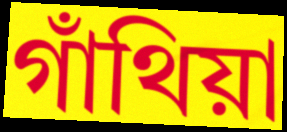
গাঁথিয়া